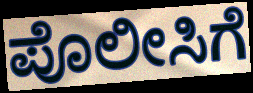
ಪೊಲೀಸಿಗೆ